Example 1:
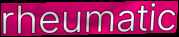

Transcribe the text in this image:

rheumatic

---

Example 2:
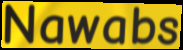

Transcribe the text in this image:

Nawabs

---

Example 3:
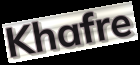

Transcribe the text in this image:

Khafre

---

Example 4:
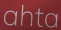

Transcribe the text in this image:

ahta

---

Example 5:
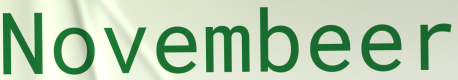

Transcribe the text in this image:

Novembeer